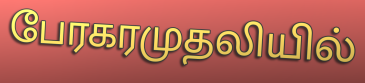
பேரகரமுதலியில்